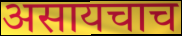
असायचाच